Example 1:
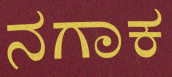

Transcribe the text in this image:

ನಗಾಕ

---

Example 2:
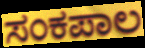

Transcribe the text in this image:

ಸಂಕಪಾಲ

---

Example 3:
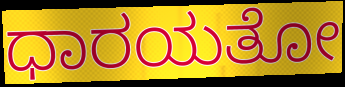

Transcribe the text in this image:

ಧಾರಯತೋ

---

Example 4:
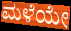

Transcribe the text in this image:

ಮಳೆಯೇ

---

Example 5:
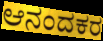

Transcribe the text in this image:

ಆನಂದಕರ